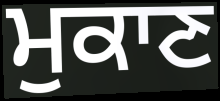
ਮੁਕਾਣ